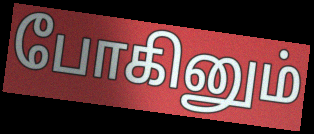
போகினும்